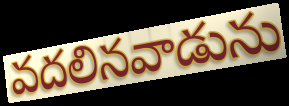
వదలినవాడును